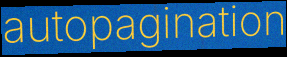
autopagination